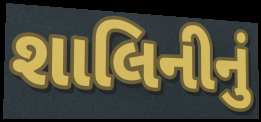
શાલિનીનું